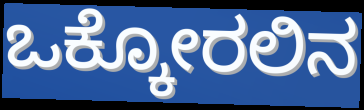
ಒಕ್ಕೋರಲಿನ